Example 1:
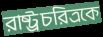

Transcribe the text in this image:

রাষ্ট্রচরিত্রকে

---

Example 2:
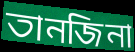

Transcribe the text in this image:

তানজিনা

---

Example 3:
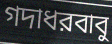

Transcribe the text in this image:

গদাধরবাবু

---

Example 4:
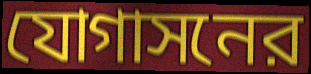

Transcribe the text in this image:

যোগাসনের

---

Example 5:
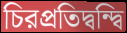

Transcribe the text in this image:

চিরপ্রতিদ্বন্দ্বি